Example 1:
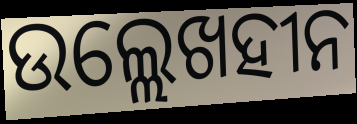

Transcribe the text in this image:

ଉଲ୍ଲେଖହୀନ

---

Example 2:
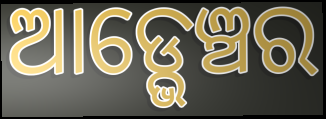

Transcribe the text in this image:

ଆଡ୍ଭେଞ୍ଚର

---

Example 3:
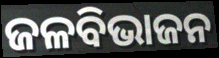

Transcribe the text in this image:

ଜଳବିଭାଜନ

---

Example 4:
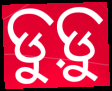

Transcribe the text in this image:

ଡୁଡ଼ୁ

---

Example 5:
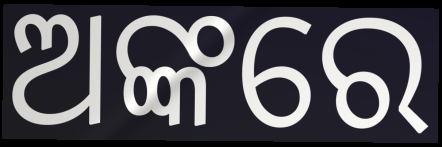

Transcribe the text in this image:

ଅଙ୍କରେ